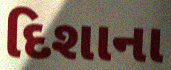
દિશાના